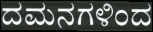
ದಮನಗಳಿಂದ